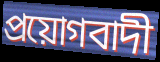
প্রয়োগবাদী